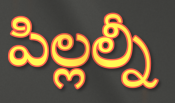
పిల్లల్నీ